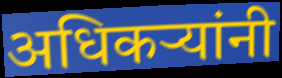
अधिकऱ्यांनी